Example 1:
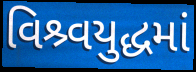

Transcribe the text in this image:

વિશ્ર્વયુદ્ધમાં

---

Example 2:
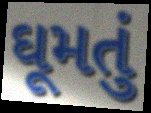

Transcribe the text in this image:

ઘૂમતું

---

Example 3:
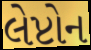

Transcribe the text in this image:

લેપ્ટોન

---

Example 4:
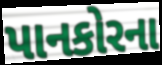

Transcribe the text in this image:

પાનકોરના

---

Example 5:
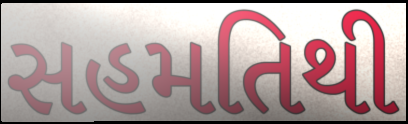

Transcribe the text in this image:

સહમતિથી